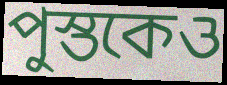
পুস্তকেও